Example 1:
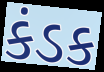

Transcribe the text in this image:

કંડક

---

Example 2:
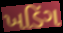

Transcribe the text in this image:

ખડિંગ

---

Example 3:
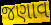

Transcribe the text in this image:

જણાવ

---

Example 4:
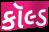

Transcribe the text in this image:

કૉલ્ડ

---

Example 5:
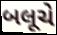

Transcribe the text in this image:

બલૂચે